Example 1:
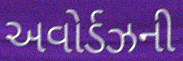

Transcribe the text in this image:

અવોર્ડઝની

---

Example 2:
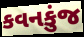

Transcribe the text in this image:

કવનકુંજ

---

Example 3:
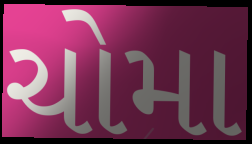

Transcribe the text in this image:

ચોમા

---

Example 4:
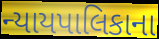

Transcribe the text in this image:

ન્યાયપાલિકાના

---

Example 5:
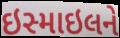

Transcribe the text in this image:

ઇસ્માઇલને